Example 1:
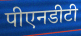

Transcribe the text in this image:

पीएनडीटी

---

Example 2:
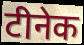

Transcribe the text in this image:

टीनेक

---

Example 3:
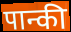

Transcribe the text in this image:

पान्की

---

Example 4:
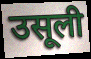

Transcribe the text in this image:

उसूली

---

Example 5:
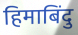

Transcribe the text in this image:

हिमाबिंदु